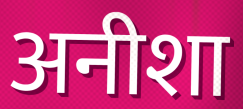
अनीशा